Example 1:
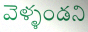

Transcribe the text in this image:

వెళ్ళండని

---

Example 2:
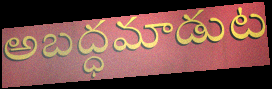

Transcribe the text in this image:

అబద్ధమాడుట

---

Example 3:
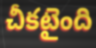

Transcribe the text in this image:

చీకటైంది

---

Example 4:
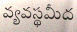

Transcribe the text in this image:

వ్యవస్థమీద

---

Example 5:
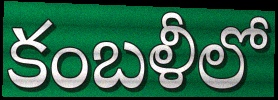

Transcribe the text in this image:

కంబళీలో